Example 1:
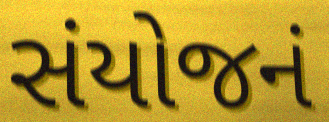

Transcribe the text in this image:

સંયોજનં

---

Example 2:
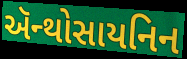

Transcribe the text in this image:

ઍન્થોસાયનિન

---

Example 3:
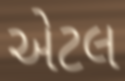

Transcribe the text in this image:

એટલ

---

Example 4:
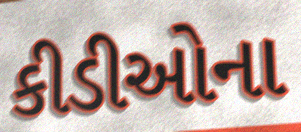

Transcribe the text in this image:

કીડીઓના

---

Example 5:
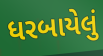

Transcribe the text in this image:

ધરબાયેલું